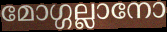
മോഗ്ഗല്ലാനോ